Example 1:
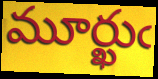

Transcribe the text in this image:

మూర్ఖుఁ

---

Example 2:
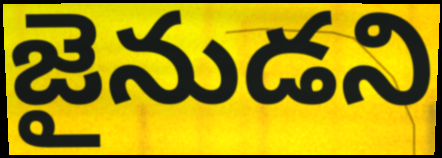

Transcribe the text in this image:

జైనుడని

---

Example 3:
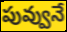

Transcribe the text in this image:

పువ్వునే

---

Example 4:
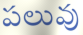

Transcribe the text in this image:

పలువు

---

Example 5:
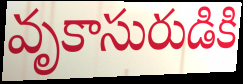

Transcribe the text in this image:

వృకాసురుడికి